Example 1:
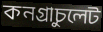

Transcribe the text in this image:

কনগ্রাচুলেট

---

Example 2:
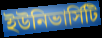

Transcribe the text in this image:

ইউনিভার্সিটি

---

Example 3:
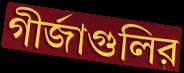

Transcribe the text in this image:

গীর্জাগুলির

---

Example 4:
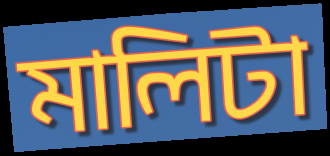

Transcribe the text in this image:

মালিটা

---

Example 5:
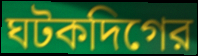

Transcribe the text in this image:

ঘটকদিগের